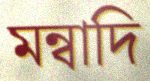
মন্বাদি